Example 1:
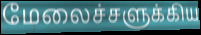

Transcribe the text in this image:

மேலைச்சளுக்கிய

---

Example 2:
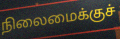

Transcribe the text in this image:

நிலைமைக்குச்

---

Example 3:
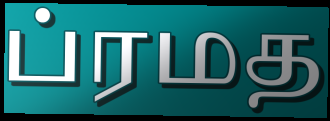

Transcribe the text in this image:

ப்ரமத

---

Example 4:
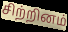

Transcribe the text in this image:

சிற்றினம்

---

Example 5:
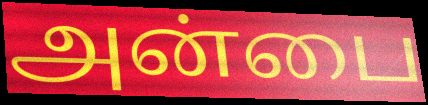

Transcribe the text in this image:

அன்பை